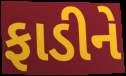
ફાડીને